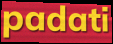
padati